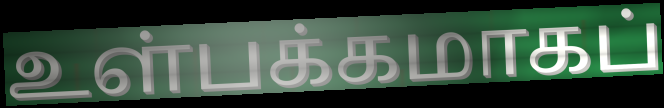
உள்பக்கமாகப்